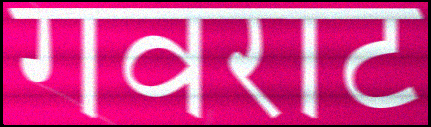
गवराट